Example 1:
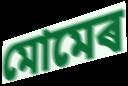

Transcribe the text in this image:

মোমেৰ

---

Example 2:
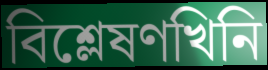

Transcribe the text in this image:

বিশ্লেষণখিনি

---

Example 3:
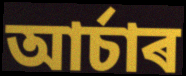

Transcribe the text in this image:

আৰ্চাৰ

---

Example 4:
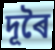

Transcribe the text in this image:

দূৰৈ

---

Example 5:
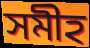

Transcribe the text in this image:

সমীহ